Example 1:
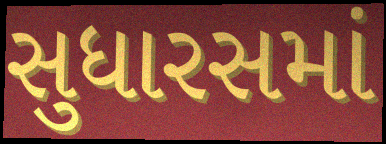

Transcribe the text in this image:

સુધારસમાં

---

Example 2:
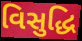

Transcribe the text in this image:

વિસુદ્ધિ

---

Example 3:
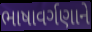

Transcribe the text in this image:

ભાષાવર્ગણાને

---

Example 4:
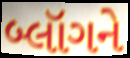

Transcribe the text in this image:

બ્લૉગને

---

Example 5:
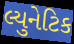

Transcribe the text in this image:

લ્યુનેટિક